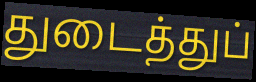
துடைத்துப்